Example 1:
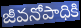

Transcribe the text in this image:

జీవనోపాధికి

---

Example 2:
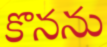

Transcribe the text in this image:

కొనను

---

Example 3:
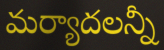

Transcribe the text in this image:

మర్యాదలన్నీ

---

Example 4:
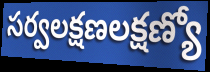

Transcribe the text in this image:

సర్వలక్షణలక్షణ్యో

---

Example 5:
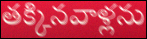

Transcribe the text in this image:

తక్కినవాళ్లను